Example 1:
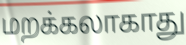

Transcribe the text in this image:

மறக்கலாகாது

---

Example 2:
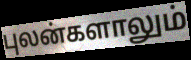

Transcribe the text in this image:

புலன்களாலும்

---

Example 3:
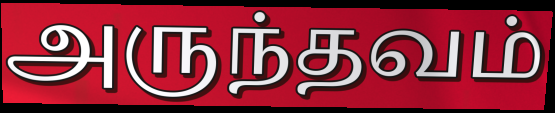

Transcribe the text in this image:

அருந்தவம்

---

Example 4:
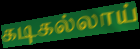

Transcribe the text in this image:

கடிகல்லாய்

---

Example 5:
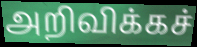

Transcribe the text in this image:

அறிவிக்கச்